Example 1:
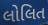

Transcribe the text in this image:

લોલિત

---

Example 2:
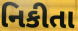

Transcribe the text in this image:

નિકીતા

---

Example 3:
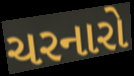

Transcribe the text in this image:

ચરનારો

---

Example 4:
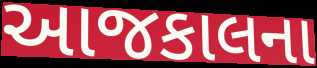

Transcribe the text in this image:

આજકાલના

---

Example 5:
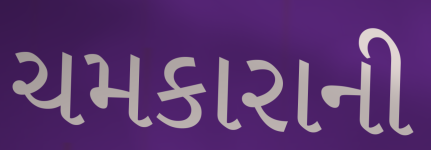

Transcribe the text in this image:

ચમકારાની